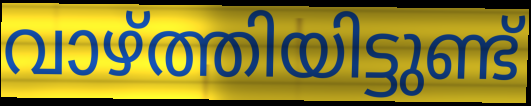
വാഴ്ത്തിയിട്ടുണ്ട്